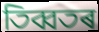
তিব্বতৰ